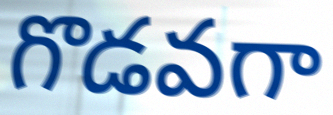
గొడవగా